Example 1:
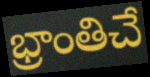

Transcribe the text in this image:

భ్రాంతిచే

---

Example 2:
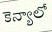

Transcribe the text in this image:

కెన్యాలో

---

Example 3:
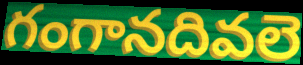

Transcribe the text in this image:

గంగానదివలె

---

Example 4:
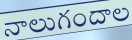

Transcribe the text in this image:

నాలుగందాల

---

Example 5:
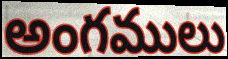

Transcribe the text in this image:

అంగములు